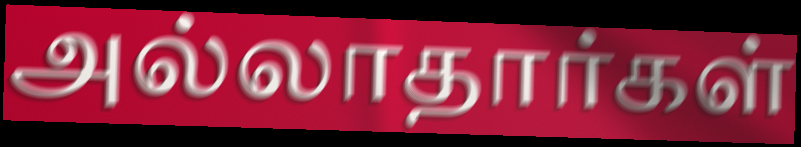
அல்லாதார்கள்